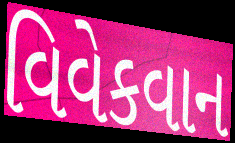
વિવેકવાન